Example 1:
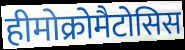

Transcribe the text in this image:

हीमोक्रोमैटोसिस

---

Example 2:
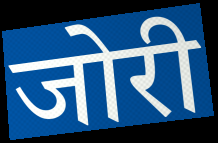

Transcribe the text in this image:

जोरी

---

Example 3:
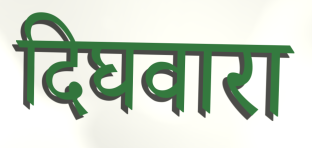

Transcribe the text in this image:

दिघवारा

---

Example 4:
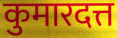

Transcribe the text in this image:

कुमारदत्त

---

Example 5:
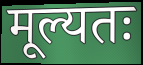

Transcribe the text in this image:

मूल्यतः